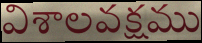
విశాలవక్షము